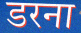
डरना